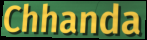
Chhanda